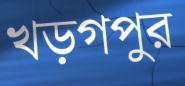
খড়গপুর